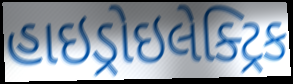
હાઇડ્રોઇલેક્ટ્રિક